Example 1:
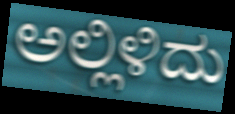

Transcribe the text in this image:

ಅಲ್ಲಿಳಿದು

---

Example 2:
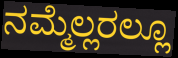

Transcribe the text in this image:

ನಮ್ಮೆಲ್ಲರಲ್ಲೂ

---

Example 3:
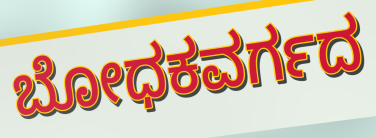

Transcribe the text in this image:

ಬೋಧಕವರ್ಗದ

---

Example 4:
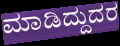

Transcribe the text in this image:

ಮಾಡಿದ್ದುದರ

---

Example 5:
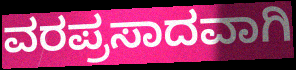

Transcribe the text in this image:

ವರಪ್ರಸಾದವಾಗಿ